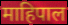
माहिपाल